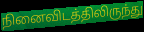
நினைவிடத்திலிருந்து